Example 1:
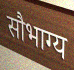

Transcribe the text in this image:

सौभाग्य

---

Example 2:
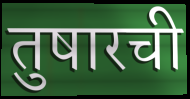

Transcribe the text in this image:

तुषारची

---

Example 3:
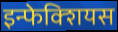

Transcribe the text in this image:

इन्फेक्शियस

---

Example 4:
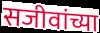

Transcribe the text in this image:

सजीवांच्या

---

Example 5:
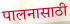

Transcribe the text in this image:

पालनासाठी